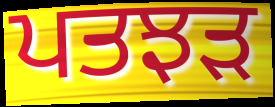
ਪਤਝਡ਼